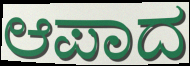
ಆಪಾದ